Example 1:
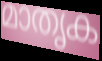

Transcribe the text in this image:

മാതൃക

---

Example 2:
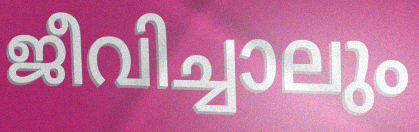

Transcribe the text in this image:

ജീവിച്ചാലും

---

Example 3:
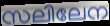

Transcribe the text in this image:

സലിലേന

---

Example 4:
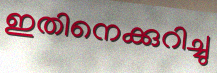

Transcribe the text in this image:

ഇതിനെക്കുറിച്ചു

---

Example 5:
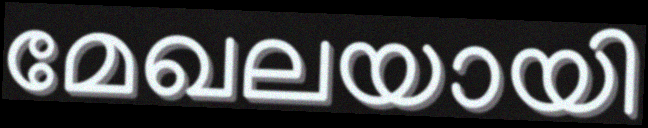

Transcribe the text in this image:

മേഖലയായി